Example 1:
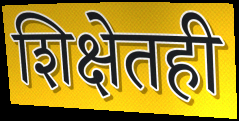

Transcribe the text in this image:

शिक्षेतही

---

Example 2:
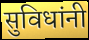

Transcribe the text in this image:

सुविधांनी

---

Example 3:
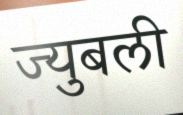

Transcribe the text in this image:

ज्युबली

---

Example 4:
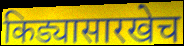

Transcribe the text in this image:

किड्यासारखेच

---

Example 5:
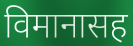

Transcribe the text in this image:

विमानासह